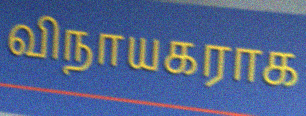
விநாயகராக